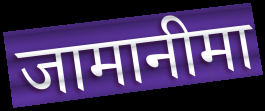
जामानीमा